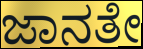
ಜಾನತೇ